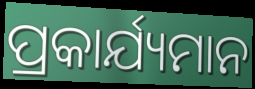
ପ୍ରକାର୍ଯ୍ୟମାନ